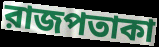
রাজপতাকা